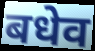
बधेव